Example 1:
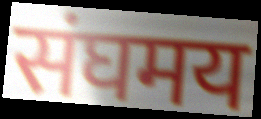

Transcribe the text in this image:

संघमय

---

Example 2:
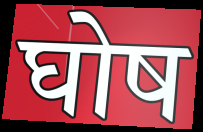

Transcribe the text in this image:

घोष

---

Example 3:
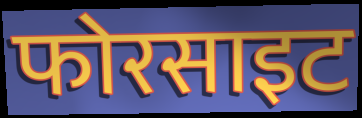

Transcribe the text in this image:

फोरसाइट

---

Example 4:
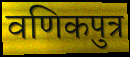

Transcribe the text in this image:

वणिकपुत्र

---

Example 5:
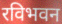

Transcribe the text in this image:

रविभवन